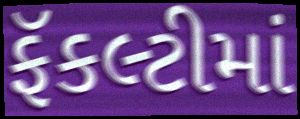
ફૅકલ્ટીમાં